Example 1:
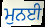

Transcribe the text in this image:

ਮੁਨਈ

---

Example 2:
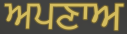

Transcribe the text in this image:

ਅਪਣਾਅ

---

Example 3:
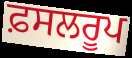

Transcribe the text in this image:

ਫ਼ਸਲਰੂਪ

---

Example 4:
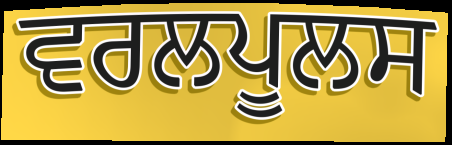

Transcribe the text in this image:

ਵਰਲਪੂਲਸ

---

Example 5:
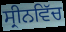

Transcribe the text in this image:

ਸ੍ਰੀਨਵਿੱਚ